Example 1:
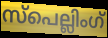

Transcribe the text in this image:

സ്പെല്ലിംഗ്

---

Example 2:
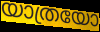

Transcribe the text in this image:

യാത്രയോ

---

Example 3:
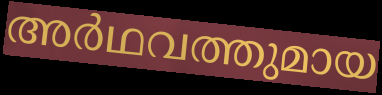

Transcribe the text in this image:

അർഥവത്തുമായ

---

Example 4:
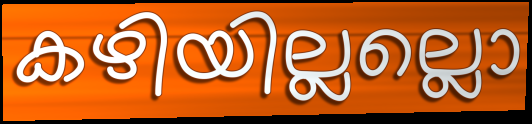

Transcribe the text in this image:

കഴിയില്ലല്ലൊ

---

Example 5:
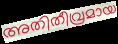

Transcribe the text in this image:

അതിതീവ്രമായ